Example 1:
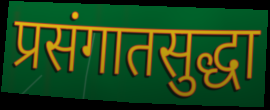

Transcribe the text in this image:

प्रसंगातसुद्धा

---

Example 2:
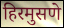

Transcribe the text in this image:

हिरमुसणे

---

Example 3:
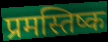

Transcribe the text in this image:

प्रमस्तिष्क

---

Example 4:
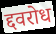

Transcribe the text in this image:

द्दवरोध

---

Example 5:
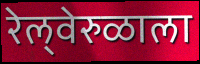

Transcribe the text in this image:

रेल्वेरुळाला